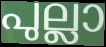
പുല്ലാ